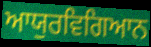
ਆਯੁਰਵਿਗਿਆਨ